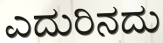
ಎದುರಿನದು